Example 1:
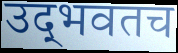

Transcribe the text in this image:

उद्‌भवतच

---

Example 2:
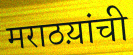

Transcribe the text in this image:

मराठय़ांची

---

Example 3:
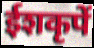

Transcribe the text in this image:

ईशकृपें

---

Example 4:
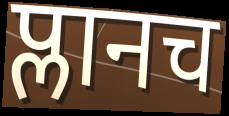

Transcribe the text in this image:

प्लानच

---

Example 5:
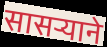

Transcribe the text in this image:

सासऱ्याने